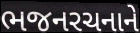
ભજનરચનાને